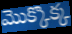
మొక్కొక్క